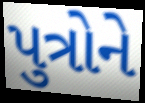
પુત્રોને